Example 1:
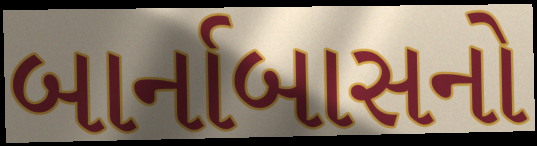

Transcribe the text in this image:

બાર્નાબાસનો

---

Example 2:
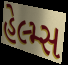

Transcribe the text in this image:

હેલ્મ્સ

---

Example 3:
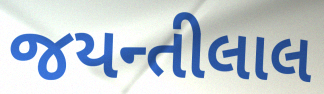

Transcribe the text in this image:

જયન્તીલાલ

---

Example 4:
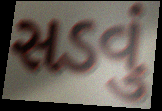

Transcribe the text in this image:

સડવું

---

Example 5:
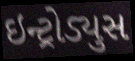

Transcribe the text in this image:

ઇન્ટ્રોડ્યુસ